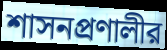
শাসনপ্রণালীর